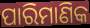
ପାରିମାଣିକ